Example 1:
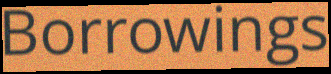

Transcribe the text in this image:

Borrowings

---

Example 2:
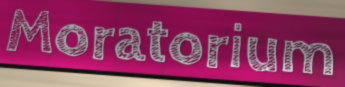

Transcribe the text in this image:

Moratorium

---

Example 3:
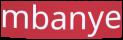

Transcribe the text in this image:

mbanye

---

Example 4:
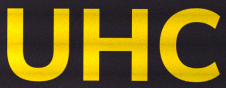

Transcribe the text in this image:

UHC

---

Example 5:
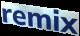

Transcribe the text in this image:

remix